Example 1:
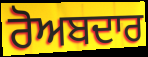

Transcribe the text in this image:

ਰੋਅਬਦਾਰ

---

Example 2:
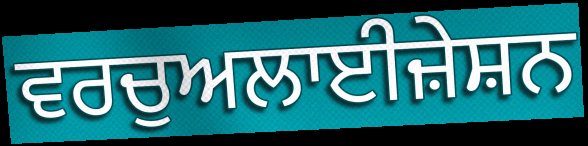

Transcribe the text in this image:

ਵਰਚੁਅਲਾਈਜ਼ੇਸ਼ਨ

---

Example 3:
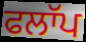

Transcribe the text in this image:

ਫਲਾੱਪ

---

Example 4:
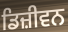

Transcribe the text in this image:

ਡਿਜ਼ੀਵਨ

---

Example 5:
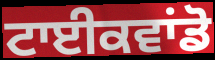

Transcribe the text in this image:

ਟਾਈਕਵਾਂਡੋ